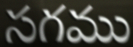
సగము